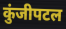
कुंजीपटल